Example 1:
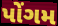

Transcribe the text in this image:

પોંગમ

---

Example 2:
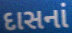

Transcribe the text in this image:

દાસનાં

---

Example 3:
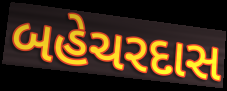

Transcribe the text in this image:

બહેચરદાસ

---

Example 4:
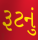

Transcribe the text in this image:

રૂટનું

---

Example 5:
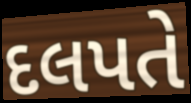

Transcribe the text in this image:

દલપતે